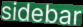
sidebar